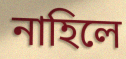
নাহিলে